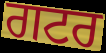
ਗਟਰ